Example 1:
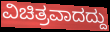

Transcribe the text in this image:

ವಿಚಿತ್ರವಾದದ್ದು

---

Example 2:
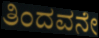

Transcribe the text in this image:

ತಿಂದವನೇ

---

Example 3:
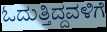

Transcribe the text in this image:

ಓದುತ್ತಿದ್ದವಳಿಗೆ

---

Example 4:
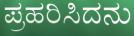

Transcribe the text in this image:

ಪ್ರಹರಿಸಿದನು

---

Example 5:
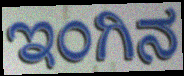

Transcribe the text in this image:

ಇಂಗಿನ